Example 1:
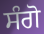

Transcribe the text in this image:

ਸੰਗੋ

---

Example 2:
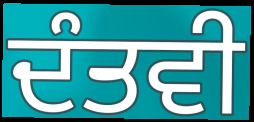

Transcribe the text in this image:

ਦੰਤਵੀ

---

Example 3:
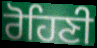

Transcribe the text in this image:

ਰੋਹਿਣੀ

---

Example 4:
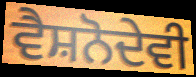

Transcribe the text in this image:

ਵੈਸ਼ਨੋਦੇਵੀ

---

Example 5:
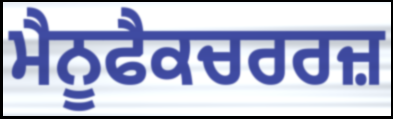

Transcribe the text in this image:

ਮੈਨੂਫੈਕਚਰਰਜ਼